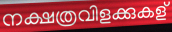
നക്ഷത്രവിളക്കുകള്